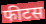
फीटस